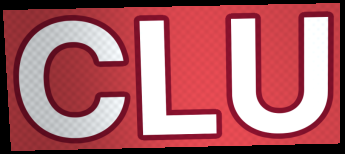
CLU